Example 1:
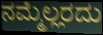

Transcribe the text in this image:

ನಮ್ಮೆಲ್ಲರದು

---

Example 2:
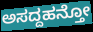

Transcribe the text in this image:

ಅಸದ್ದಹನ್ತೋ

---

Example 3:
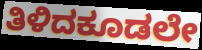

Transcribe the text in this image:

ತಿಳಿದಕೂಡಲೇ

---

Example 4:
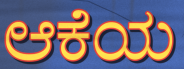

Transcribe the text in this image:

ಆಕೆಯ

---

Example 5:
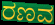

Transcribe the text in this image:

ರಣವ